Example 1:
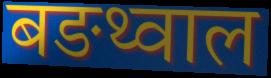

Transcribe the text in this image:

बङथ्वाल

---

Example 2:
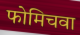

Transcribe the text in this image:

फोमिचवा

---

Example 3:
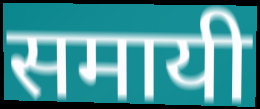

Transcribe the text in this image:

समायी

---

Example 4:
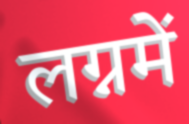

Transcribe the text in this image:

लग्नमें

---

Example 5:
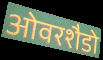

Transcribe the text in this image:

ओवरशैडो